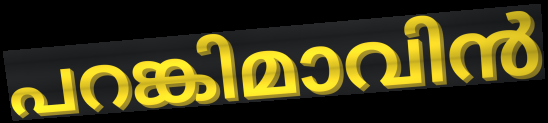
പറങ്കിമാവിൻ